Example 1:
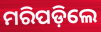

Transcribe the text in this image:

ମରିପଡ଼ିଲେ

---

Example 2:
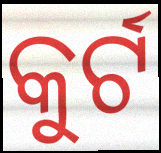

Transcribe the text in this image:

କୁର୍ଟ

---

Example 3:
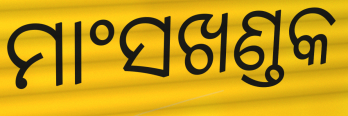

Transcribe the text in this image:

ମାଂସଖଣ୍ଡକ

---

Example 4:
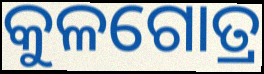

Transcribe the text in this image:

କୁଳଗୋତ୍ର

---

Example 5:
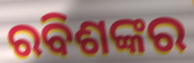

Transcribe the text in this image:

ରବିଶଙ୍କର